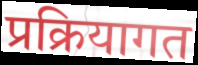
प्रक्रियागत